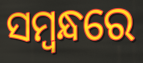
ସମ୍ବନ୍ଧରେ